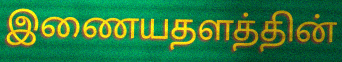
இணையதளத்தின்